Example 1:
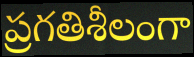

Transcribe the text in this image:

ప్రగతిశీలంగా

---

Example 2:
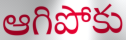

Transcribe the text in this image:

ఆగిపోకు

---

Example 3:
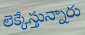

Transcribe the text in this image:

లెక్కేస్తున్నారు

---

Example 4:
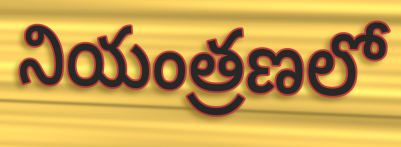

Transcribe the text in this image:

నియంత్రణలో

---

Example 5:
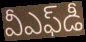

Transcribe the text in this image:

వీఎఫ్‌డీ